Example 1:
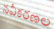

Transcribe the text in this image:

నవీకరణల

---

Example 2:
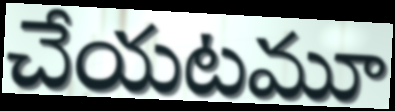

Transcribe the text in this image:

చేయటమూ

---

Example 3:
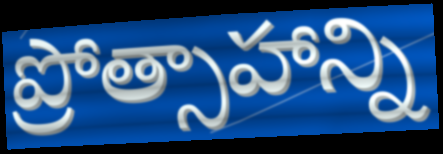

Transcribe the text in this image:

ప్రోత్సాహాన్ని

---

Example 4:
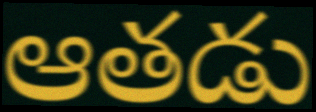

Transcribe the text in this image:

ఆతడు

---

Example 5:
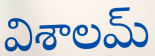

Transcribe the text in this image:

విశాలమ్